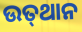
ଉତ୍‌ଥାନ